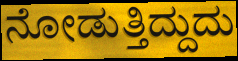
ನೋಡುತ್ತಿದ್ದುದು